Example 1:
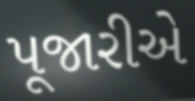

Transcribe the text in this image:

પૂજારીએ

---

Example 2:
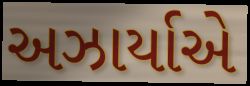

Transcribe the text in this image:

અઝાર્યાએ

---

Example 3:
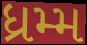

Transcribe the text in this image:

ધ્રમ્મ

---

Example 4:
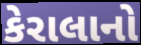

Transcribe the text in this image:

કેરાલાનો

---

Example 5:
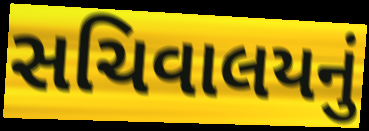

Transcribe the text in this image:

સચિવાલયનું